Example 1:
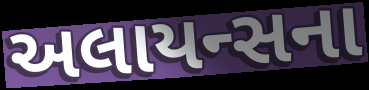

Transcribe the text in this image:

અલાયન્સના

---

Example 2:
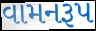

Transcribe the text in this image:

વામનરૂપ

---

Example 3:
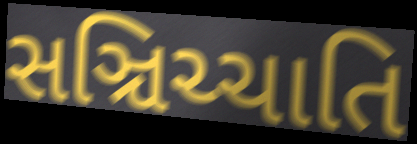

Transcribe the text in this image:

સઞ્ચિચ્ચાતિ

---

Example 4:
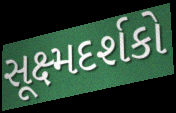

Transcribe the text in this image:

સૂક્ષ્મદર્શકો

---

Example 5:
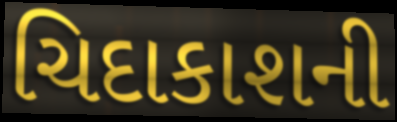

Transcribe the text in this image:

ચિદાકાશની